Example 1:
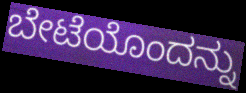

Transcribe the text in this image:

ಬೇಟೆಯೊಂದನ್ನು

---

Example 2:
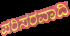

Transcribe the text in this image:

ಪರಿಸರವಾದಿ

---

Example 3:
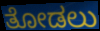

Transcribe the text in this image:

ತೋಡಲು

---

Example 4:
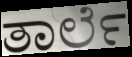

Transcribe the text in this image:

ತಾರ್ಲೆ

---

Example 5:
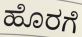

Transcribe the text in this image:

ಹೊರಗೆ